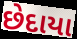
છેદાયા